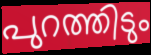
പുറത്തിടും